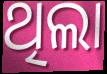
ଥିଲା